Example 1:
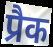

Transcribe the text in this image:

प्रैक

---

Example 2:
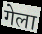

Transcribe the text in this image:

गेला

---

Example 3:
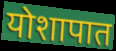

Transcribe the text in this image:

योशापात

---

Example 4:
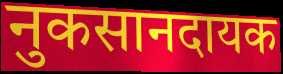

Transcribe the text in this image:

नुकसानदायक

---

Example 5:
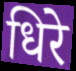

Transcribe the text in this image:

धिरे